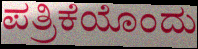
ಪತ್ರಿಕೆಯೊಂದು